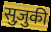
सुज़ुकी